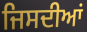
ਜਿਸਦੀਆਂ